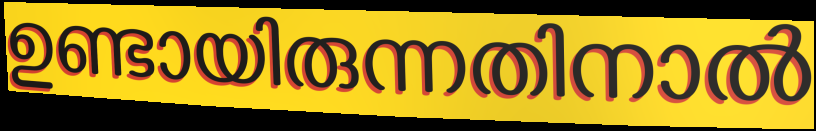
ഉണ്ടായിരുന്നതിനാൽ